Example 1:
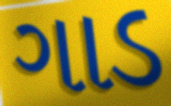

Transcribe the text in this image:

ગાડ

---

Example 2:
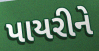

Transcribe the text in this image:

પાયરીને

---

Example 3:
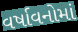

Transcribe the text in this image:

વર્ષાવનોમાં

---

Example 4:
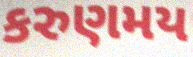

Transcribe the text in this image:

કરુણમય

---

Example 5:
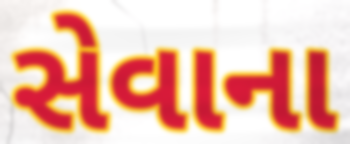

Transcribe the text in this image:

સેવાના